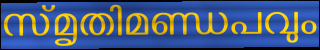
സ്മൃതിമണ്ഡപവും